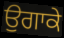
ਉਗਾਕੇ